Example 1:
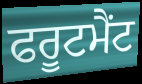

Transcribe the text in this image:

ਫਰੂਟਮੈਂਟ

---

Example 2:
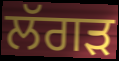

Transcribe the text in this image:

ਲੱਗੜ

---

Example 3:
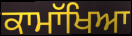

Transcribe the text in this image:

ਕਾਮਾੱਖਿਆ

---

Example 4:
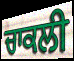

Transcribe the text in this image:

ਚਾਕਲੀ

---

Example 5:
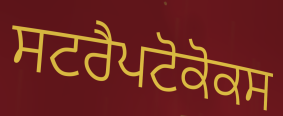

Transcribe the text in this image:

ਸਟਰੈਪਟੋਕੋਕਸ